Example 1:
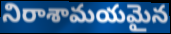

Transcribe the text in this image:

నిరాశామయమైన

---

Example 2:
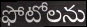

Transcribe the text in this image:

ఫోటోలను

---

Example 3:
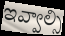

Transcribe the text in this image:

ఇవ్వాల్సి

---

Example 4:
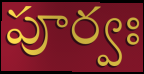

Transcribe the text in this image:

పూర్వః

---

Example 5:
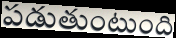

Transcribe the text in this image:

పడుతుంటుంది